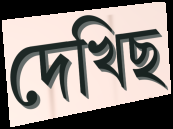
দেখিছ